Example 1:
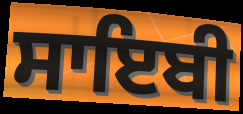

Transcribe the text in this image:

ਸਾਇਬੀ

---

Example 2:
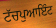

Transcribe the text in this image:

ਟੱਚਪੁਆਇੰਟ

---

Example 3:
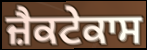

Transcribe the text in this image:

ਜ਼ੈਕਟੇਕਾਸ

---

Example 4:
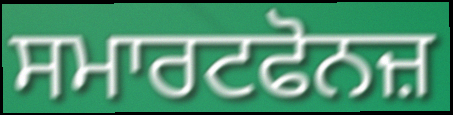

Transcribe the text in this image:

ਸਮਾਰਟਫੋਨਜ਼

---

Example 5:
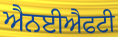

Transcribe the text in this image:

ਐਨਈਐਫਟੀ